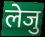
लेजु